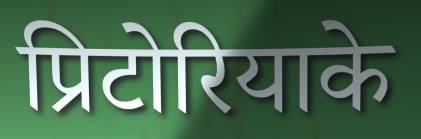
प्रिटोरियाके